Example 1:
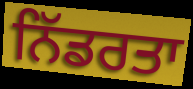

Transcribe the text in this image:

ਨਿੱਡਰਤਾ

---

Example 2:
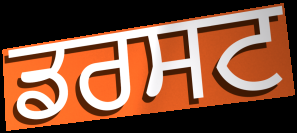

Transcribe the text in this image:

ਡਰਸਟ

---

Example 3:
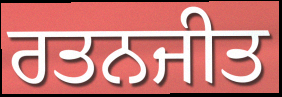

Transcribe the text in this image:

ਰਤਨਜੀਤ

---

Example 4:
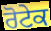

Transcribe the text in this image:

ਰੋਟੇਕ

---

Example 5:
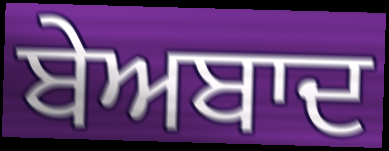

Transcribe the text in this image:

ਬੇਅਬਾਦ